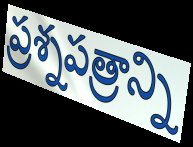
ప్రశ్నపత్రాన్ని